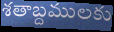
శతాబ్దములకు